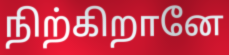
நிற்கிறானே